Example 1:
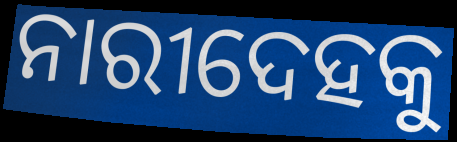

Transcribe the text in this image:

ନାରୀଦେହକୁ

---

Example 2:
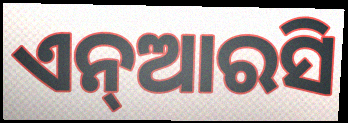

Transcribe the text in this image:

ଏନ୍ଆରସି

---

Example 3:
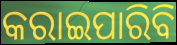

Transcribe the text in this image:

କରାଇପାରିବି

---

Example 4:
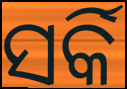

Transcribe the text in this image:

ସର୍କି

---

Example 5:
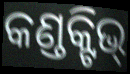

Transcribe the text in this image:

କଣ୍ଡକ୍ଟିଭ୍